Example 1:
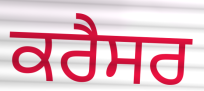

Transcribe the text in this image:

ਕਰੈਸਰ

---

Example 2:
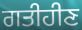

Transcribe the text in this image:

ਗਤੀਹੀਣ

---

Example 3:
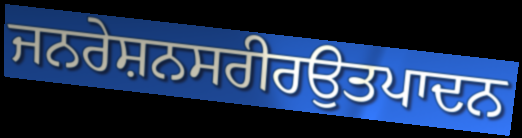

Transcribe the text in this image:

ਜਨਰੇਸ਼ਨਸਰੀਰਉਤਪਾਦਨ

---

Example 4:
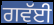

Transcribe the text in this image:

ਗਵੱਈ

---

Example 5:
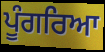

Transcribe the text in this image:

ਪੂੰਗਰਿਆ